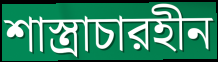
শাস্ত্রাচারহীন